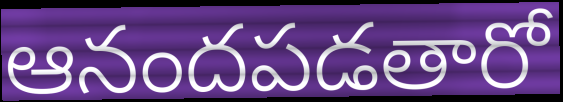
ఆనందపడతారో